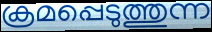
ക്രമപ്പെടുത്തുന്ന